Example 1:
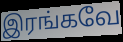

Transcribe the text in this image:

இரங்கவே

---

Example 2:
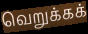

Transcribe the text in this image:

வெறுக்கக்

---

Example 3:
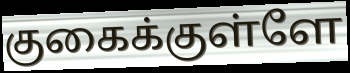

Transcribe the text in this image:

குகைக்குள்ளே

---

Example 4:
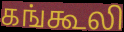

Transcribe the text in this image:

கங்கூலி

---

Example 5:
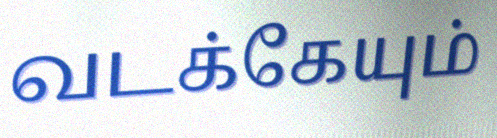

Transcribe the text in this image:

வடக்கேயும்